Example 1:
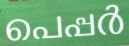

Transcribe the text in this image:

പെപ്പർ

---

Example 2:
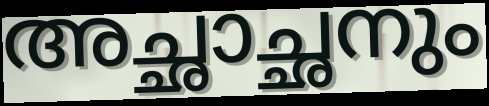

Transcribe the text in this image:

അച്ഛാച്ഛനും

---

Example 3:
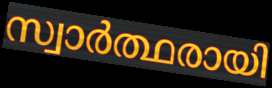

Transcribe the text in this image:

സ്വാർത്ഥരായി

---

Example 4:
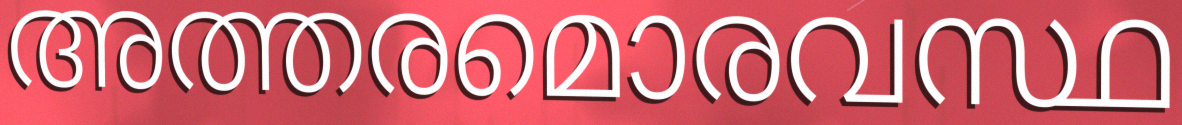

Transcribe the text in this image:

അത്തരമൊരവസ്ഥ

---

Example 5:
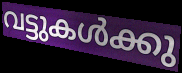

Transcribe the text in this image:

വട്ടുകൾക്കു